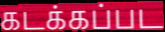
கடக்கப்பட